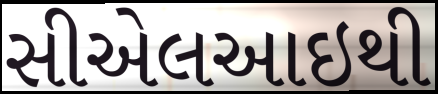
સીએલઆઇથી